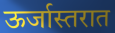
ऊर्जास्तरात